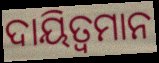
ଦାୟିତ୍ୱମାନ